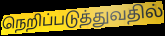
நெறிப்படுத்துவதில்